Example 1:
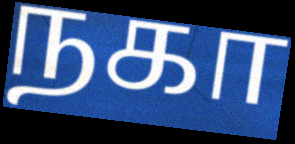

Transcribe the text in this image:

நகா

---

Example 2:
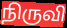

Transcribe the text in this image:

நிருவி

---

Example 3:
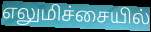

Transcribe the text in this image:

எலுமிச்சையில்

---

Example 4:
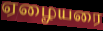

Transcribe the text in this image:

ஏழையரை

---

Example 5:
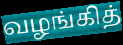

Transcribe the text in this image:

வழங்கித்